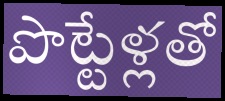
పొట్టేళ్లతో